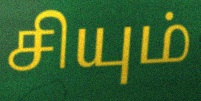
சியும்